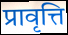
प्रावृत्ति